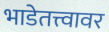
भाडेतत्त्वावर